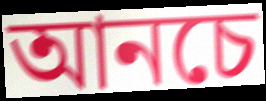
আনচে